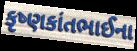
કૃષ્ણકાંતભાઈના